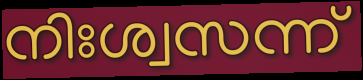
നിഃശ്വസന്ന്